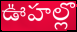
ఊహల్లొ